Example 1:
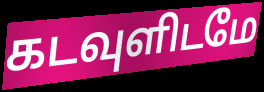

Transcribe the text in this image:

கடவுளிடமே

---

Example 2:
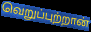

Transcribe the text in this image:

வெறுப்புற்றான்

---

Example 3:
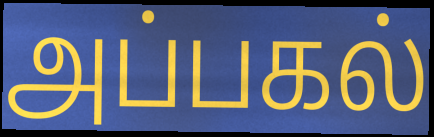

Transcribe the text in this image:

அப்பகல்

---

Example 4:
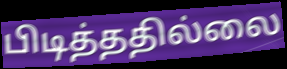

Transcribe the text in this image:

பிடித்ததில்லை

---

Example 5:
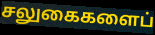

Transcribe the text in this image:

சலுகைகளைப்